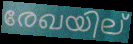
രേഖയില്